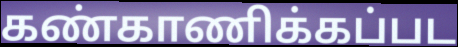
கண்காணிக்கப்பட